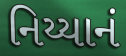
નિય્યાનં